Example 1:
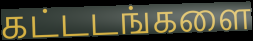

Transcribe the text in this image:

கட்டடங்களை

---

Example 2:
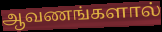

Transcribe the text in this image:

ஆவணங்களால்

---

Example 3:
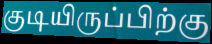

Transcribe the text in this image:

குடியிருப்பிற்கு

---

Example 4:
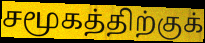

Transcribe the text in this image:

சமூகத்திற்குக்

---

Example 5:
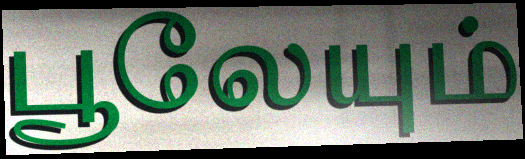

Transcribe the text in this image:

பூலேயும்